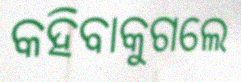
କହିବାକୁଗଲେ